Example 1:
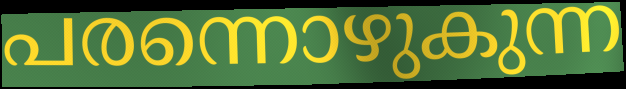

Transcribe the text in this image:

പരന്നൊഴുകുന്ന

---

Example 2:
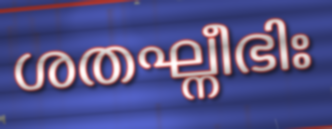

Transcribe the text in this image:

ശതഘ്നീഭിഃ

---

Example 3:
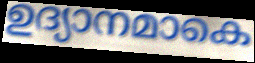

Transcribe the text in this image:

ഉദ്യാനമാകെ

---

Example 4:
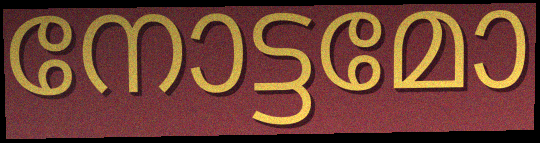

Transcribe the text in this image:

നോട്ടമോ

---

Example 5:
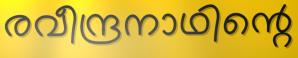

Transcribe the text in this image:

രവീന്ദ്രനാഥിന്റെ